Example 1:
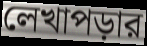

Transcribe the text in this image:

লেখাপড়ার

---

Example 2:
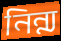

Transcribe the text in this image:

নিন্ম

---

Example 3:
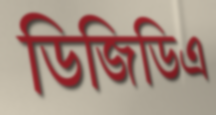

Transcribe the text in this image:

ডিজিডিএ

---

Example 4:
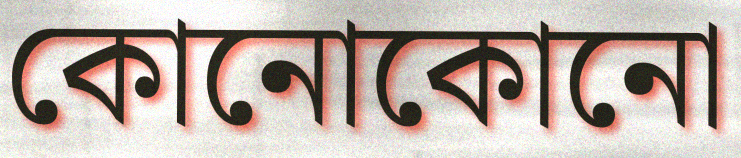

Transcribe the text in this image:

কোনোকোনো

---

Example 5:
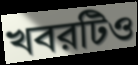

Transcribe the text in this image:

খবরটিও